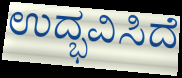
ಉದ್ಭವಿಸಿದೆ